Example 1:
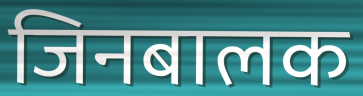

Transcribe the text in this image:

जिनबालक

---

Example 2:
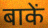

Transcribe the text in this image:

बाकें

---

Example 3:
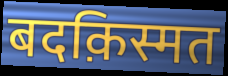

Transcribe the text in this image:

बदक़िस्मत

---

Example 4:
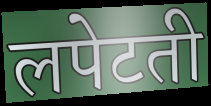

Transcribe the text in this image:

लपेटती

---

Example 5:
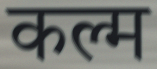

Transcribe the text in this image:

कल्म